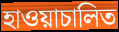
হাওয়াচালিত